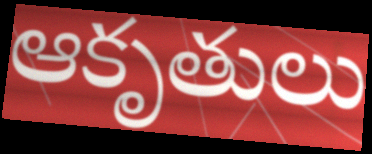
ఆకృతులు